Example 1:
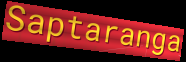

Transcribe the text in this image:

Saptaranga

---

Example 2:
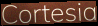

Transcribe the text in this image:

Cortesia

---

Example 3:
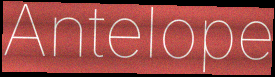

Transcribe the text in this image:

Antelope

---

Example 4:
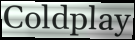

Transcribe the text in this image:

Coldplay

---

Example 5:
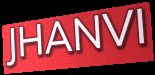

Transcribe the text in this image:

JHANVI